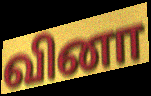
வினா